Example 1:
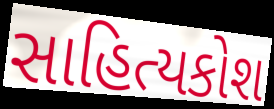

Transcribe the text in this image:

સાહિત્યકોશ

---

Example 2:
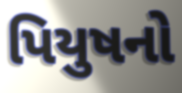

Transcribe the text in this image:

પિયુષનો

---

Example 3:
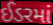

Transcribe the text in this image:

ઈડરમાં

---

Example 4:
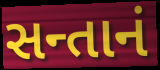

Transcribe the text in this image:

સન્તાનં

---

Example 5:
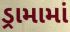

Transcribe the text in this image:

ડ્રામામાં